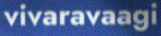
vivaravaagi